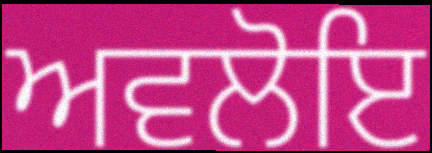
ਅਵਲੋਇ